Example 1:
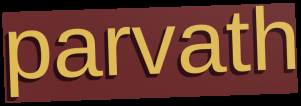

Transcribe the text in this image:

parvath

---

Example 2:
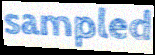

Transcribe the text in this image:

sampled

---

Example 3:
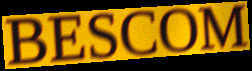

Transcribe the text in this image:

BESCOM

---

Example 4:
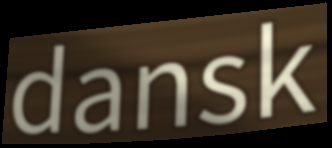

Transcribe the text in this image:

dansk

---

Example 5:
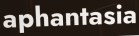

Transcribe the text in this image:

aphantasia